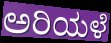
ಅರಿಯಳೆ